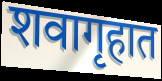
शवागृहात